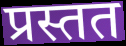
प्रस्तत